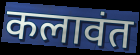
कलावंत